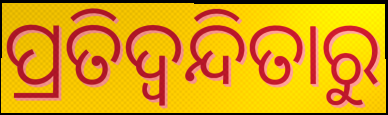
ପ୍ରତିଦ୍ୱନ୍ଦିତାରୁ